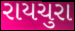
રાયચુરા